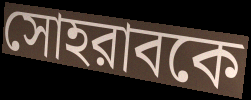
সোহরাবকে